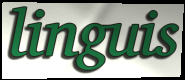
linguis